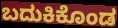
ಬದುಕಿಕೊಂಡ